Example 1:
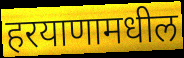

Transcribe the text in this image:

हरयाणामधील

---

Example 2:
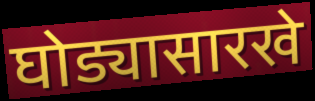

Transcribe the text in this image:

घोड्यासारखे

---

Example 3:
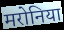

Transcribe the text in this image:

मरोनिया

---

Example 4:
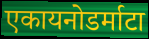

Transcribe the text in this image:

एकायनोडर्माटा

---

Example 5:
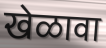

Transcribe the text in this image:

खेळावा